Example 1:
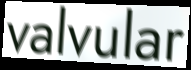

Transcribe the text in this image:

valvular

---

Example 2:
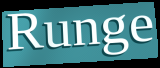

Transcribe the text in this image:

Runge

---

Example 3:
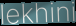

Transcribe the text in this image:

lekhini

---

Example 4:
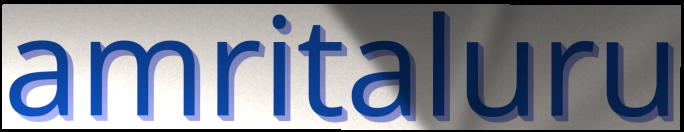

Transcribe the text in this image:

amritaluru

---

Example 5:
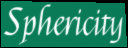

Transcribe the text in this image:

Sphericity